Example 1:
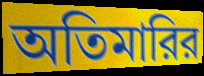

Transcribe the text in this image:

অতিমারির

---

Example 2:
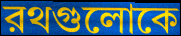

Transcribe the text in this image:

রথগুলোকে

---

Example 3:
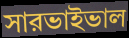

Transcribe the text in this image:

সারভাইভাল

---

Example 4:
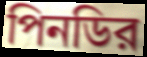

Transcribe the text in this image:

পিনডির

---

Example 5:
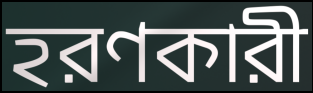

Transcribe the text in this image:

হরণকারী